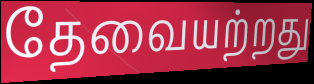
தேவையற்றது